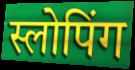
स्लोपिंग